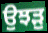
ਉਝੜੁ